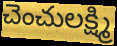
చెంచులక్ష్మి